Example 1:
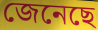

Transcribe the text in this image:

জেনেছে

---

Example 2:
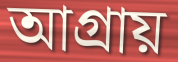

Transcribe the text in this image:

আগ্রায়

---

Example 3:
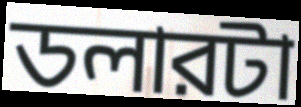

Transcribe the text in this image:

ডলারটা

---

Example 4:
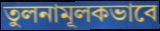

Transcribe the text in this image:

তুলনামূলকভাবে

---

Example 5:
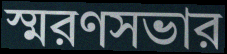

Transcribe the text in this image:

স্মরণসভার